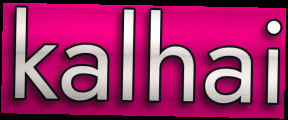
kalhai